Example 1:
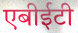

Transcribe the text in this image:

एबीईटी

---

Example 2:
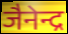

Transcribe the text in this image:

जैनेन्‍द्र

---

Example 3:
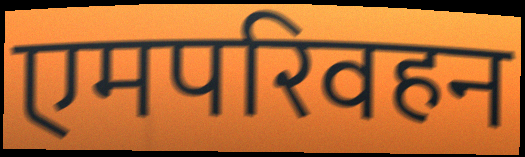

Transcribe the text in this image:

एमपरिवहन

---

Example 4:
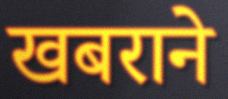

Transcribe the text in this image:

खबराने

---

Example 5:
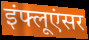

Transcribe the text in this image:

इंफ्लूएंसर